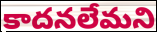
కాదనలేమని